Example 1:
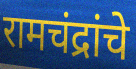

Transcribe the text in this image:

रामचंद्रांचे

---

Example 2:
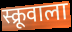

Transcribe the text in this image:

स्क्रूवाला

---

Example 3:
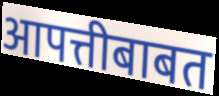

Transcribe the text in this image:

आपत्तीबाबत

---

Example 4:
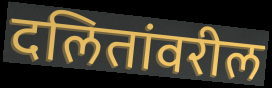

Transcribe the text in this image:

दलितांवरील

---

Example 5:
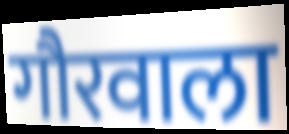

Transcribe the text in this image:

गौरवाला